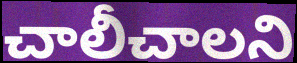
చాలీచాలని